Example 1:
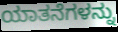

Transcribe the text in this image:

ಯಾತನೆಗಳನ್ನು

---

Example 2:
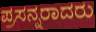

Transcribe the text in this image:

ಪ್ರಸನ್ನರಾದರು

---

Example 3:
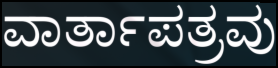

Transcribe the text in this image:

ವಾರ್ತಾಪತ್ರವು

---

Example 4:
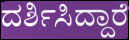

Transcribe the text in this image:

ದರ್ಶಿಸಿದ್ದಾರೆ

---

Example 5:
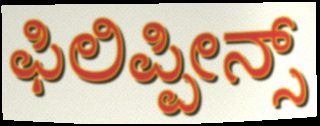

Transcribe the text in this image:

ಫಿಲಿಪ್ಪೀನ್ಸ್